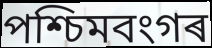
পশ্চিমবংগৰ